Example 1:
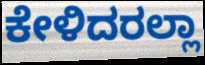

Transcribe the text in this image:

ಕೇಳಿದರಲ್ಲಾ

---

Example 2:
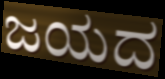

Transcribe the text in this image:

ಜಯದ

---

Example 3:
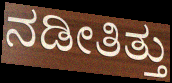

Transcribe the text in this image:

ನಡೀತಿತ್ತು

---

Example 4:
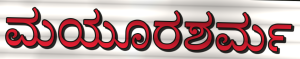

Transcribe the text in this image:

ಮಯೂರಶರ್ಮ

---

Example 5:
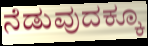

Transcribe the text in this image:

ನೆಡುವುದಕ್ಕೂ